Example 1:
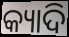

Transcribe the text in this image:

କ୍ୟାଦି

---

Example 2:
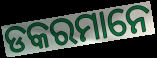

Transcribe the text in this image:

ଡକରମାନେ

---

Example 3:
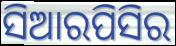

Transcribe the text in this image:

ସିଆରପିସିର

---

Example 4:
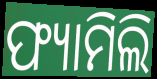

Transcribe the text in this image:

ଫ୍ୟାମିଲି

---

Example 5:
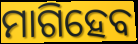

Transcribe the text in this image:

ମାଗିହେବ